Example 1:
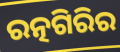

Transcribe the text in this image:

ରତ୍ନଗିରିର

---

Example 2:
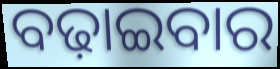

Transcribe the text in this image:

ବଢ଼ାଇବାର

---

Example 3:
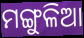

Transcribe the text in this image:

ମଙ୍ଗୁଳିଆ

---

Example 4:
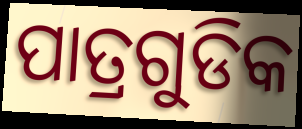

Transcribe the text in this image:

ପାତ୍ରଗୁଡିକ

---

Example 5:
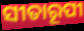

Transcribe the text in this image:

ସୀତାରୂପୀ